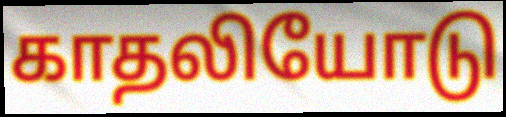
காதலியோடு